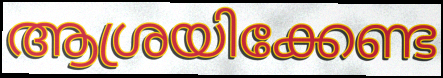
ആശ്രയിക്കേണ്ട